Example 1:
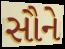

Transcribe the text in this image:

સૌને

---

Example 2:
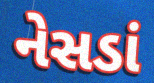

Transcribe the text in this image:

નેસડાં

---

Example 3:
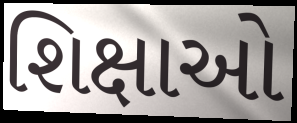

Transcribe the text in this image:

શિક્ષાઓ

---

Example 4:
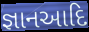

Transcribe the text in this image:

જ્ઞાનઆદિ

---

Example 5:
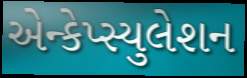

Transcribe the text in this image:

એન્કેપ્સ્યુલેશન